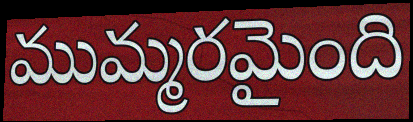
ముమ్మరమైంది